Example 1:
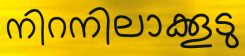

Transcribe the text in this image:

നിറനിലാക്കൂടു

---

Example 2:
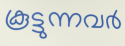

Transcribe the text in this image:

കൂട്ടുന്നവർ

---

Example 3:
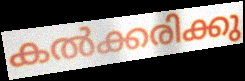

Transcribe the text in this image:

കൽക്കരിക്കു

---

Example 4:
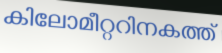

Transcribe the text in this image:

കിലോമീറ്ററിനകത്ത്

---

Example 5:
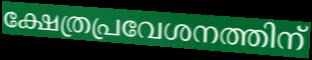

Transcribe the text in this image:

ക്ഷേത്രപ്രവേശനത്തിന്